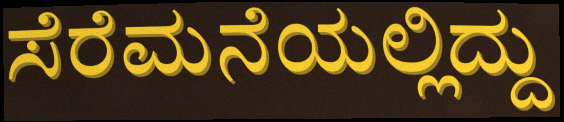
ಸೆರೆಮನೆಯಲ್ಲಿದ್ದು